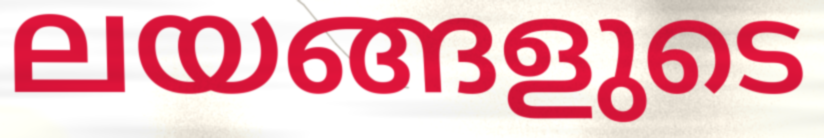
ലയങ്ങളുടെ